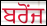
ਬਰੋਂਜ